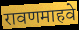
रावणमाहवे